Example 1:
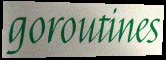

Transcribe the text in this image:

goroutines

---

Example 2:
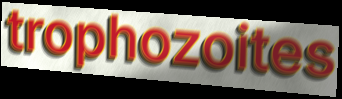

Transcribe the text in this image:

trophozoites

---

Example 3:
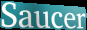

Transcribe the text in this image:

Saucer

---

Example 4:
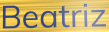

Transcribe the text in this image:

Beatriz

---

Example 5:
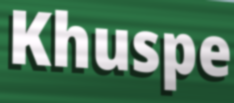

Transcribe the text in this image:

Khuspe